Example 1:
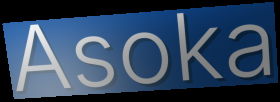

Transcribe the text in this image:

Asoka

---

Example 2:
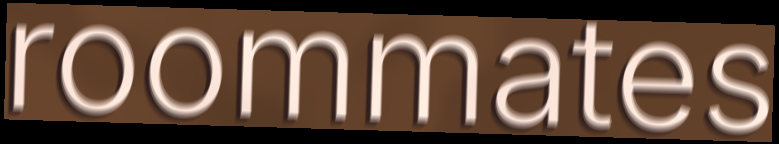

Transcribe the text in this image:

roommates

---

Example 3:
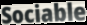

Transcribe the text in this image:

Sociable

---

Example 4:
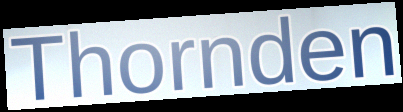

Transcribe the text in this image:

Thornden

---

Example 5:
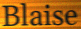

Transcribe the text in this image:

Blaise